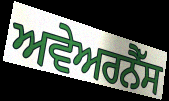
ਅਵੇਅਰਨੈੱਸ